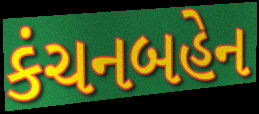
કંચનબહેન